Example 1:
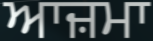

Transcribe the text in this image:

ਆਜ਼ਮਾ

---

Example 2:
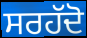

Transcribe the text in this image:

ਸਰਹੱਦੋ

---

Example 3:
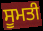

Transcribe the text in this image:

ਸੂਮਤੀ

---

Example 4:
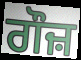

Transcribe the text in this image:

ਗੌਜ਼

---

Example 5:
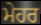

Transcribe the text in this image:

ਮੇਹਰ